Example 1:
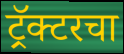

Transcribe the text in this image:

ट्रॅक्टरचा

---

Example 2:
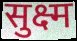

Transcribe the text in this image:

सुक्ष्म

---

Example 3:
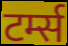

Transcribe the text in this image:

टर्म्स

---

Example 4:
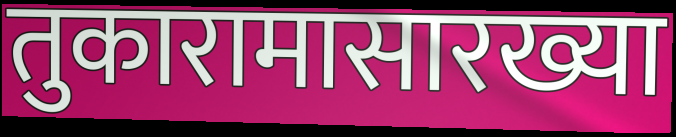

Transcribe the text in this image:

तुकारामासारख्या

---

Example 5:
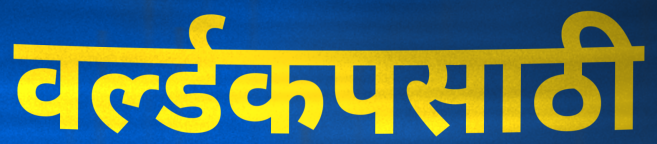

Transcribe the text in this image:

वर्ल्डकपसाठी